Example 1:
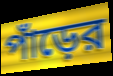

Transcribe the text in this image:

পাঁড়ের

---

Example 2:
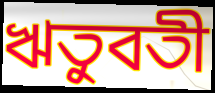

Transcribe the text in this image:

ঋতুবতী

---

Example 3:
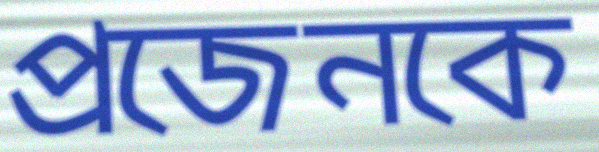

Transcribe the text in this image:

প্রজেনকে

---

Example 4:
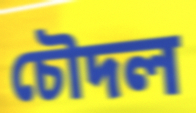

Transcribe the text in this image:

চৌদল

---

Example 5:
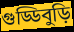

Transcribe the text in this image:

গুড্ডিবুড়ি